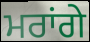
ਮਰਾਂਗੇ